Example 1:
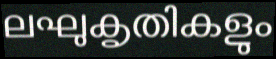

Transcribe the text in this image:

ലഘുകൃതികളും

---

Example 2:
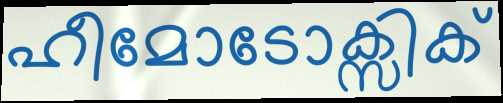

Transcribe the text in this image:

ഹീമോടോക്സിക്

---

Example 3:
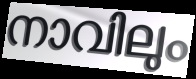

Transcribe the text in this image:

നാവിലും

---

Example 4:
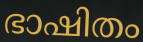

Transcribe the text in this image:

ഭാഷിതം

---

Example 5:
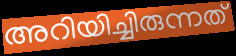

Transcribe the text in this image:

അറിയിച്ചിരുന്നത്